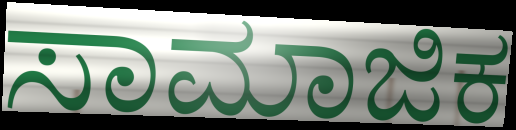
ಸಾಮಾಜಿಕ